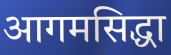
आगमसिद्धा